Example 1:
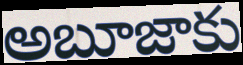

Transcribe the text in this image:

అబూజాకు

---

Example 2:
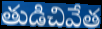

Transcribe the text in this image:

తుడిచివేత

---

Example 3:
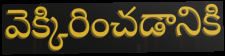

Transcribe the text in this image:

వెక్కిరించడానికి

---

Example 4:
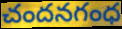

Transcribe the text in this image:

చందనగంధ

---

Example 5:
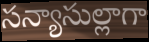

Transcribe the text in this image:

సన్యాసుల్లాగా